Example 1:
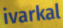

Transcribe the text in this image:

ivarkal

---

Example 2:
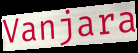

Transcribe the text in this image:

Vanjara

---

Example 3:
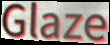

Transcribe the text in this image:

Glaze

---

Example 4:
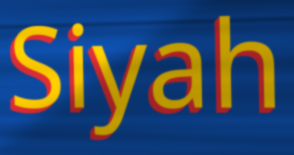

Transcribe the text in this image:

Siyah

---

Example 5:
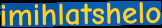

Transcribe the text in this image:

imihlatshelo